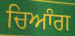
ਚਿਆੰਗ